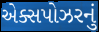
એક્સપોઝરનું